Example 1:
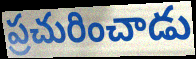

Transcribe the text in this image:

ప్రచురించాడు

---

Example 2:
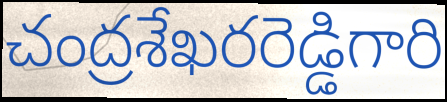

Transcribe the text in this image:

చంద్రశేఖరరెడ్డిగారి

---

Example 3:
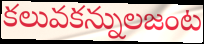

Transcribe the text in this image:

కలువకన్నులజంట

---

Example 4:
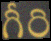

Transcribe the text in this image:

గీరి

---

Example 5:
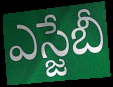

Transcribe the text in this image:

ఎస్జేబీ